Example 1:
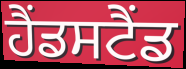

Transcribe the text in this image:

ਹੈਂਡਸਟੈਂਡ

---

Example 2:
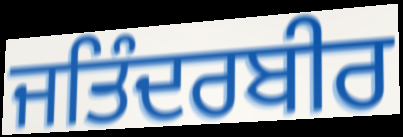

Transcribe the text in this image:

ਜਤਿੰਦਰਬੀਰ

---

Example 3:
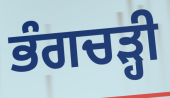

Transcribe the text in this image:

ਭੰਗਚੜ੍ਹੀ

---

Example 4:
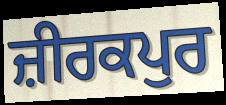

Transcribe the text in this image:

ਜ਼ੀਰਕਪੁਰ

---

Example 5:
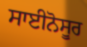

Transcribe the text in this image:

ਸਾਈਨੋਸੂਰ